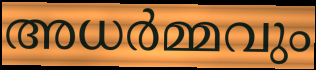
അധർമ്മവും